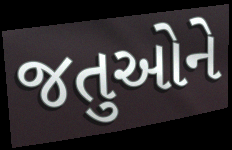
જતુઓને